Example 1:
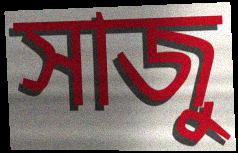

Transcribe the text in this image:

সাজু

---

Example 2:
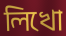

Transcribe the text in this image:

লিখো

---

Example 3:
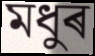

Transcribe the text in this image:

মধুৰ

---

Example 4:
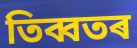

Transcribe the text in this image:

তিব্বতৰ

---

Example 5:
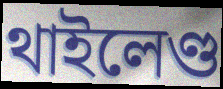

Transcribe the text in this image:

থাইলেণ্ড